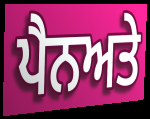
ਪੈਨਅਤੇ